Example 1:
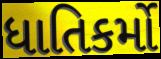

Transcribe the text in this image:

ધાતિકર્મો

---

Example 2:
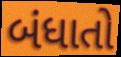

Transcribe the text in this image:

બંધાતો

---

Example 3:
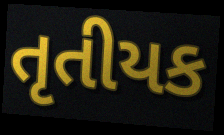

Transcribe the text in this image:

તૃતીયક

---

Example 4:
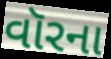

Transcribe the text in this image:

વૉરના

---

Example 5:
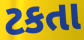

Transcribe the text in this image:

ટકતા